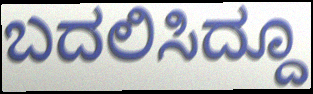
ಬದಲಿಸಿದ್ದೂ